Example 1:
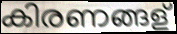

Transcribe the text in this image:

കിരണങ്ങള്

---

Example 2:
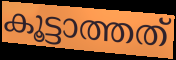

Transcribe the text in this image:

കൂട്ടാത്തത്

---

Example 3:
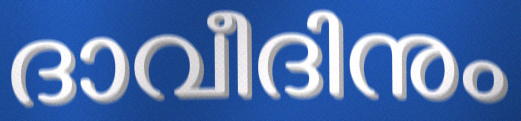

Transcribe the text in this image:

ദാവീദിനും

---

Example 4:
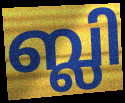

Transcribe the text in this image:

ബ്ലി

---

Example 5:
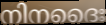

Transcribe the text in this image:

നിനദൈഃ